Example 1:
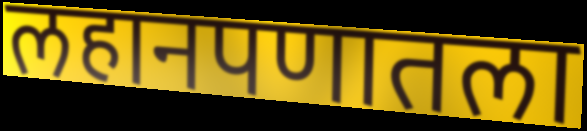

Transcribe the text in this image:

लहानपणातला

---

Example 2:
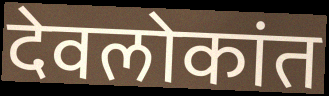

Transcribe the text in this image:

देवलोकांत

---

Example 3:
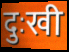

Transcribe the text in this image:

दुःखी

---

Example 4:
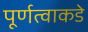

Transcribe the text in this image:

पूर्णत्वाकडे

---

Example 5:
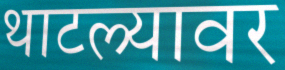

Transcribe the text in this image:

थाटल्यावर